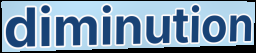
diminution